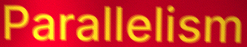
Parallelism